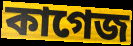
কাগেজ